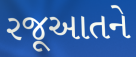
રજૂઆતને